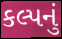
કલ્પનું